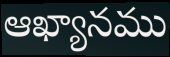
ఆఖ్యానము